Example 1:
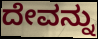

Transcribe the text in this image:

ದೇವನ್ನು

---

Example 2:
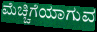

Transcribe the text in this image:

ಮೆಚ್ಚಿಗೆಯಾಗುವ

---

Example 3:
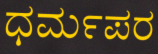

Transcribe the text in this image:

ಧರ್ಮಪರ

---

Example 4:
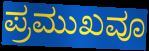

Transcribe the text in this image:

ಪ್ರಮುಖವೂ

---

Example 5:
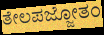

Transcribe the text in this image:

ತೇಲಪಜ್ಜೋತಂ